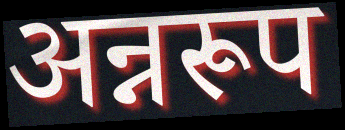
अन्नरूप